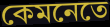
কেমনেতে